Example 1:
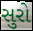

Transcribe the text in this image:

સુરો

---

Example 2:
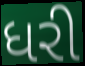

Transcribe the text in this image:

ધરી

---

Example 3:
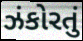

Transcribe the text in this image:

ઝંકોરતું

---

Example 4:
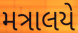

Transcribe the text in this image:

મત્રાલયે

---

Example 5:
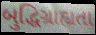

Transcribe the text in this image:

બુદ્ધિગ્રાહ્યતા